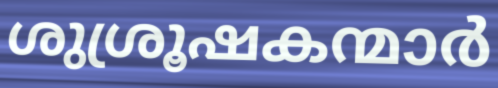
ശുശ്രൂഷകന്മാർ